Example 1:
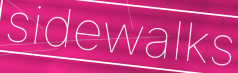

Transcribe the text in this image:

sidewalks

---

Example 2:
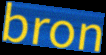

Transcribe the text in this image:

bron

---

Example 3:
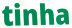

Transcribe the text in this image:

tinha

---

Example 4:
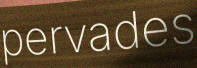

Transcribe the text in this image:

pervades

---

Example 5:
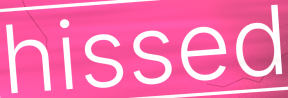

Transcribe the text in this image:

hissed